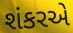
શંકરએ